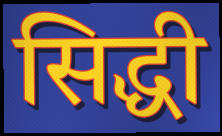
सिद्धी